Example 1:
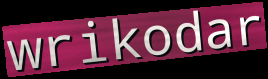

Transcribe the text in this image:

wrikodar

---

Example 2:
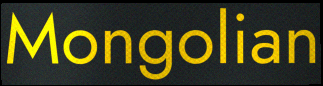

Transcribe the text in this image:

Mongolian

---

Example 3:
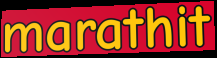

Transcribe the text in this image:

marathit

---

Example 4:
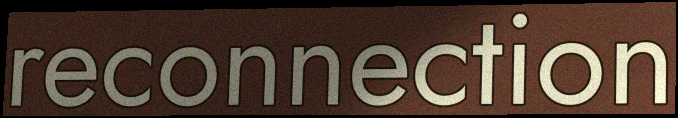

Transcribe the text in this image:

reconnection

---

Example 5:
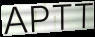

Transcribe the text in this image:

APTT